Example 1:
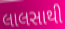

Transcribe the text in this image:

લાલસાથી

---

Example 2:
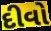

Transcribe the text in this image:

દીવો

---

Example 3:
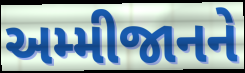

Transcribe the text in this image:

અમ્મીજાનને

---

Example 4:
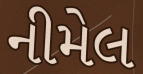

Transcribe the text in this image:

નીમેલ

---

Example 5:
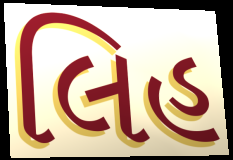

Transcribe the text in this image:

લિહ